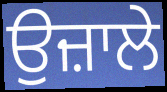
ਉਜ਼ਾਲੇ